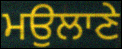
ਮਉਲਾਣੇ